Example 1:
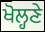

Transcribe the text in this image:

ਖੋਲ੍ਹਣੇ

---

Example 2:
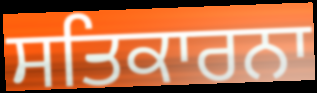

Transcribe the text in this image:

ਸਤਿਕਾਰਨਾ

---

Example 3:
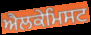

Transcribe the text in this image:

ਐਲਕੇਮਿਸਟ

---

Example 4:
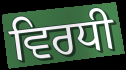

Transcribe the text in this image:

ਵਿਰਧੀ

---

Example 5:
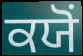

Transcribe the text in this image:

ਕਯੋਂ